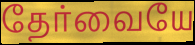
தேர்வையே